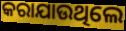
କରାଯାଉଥିଲେ